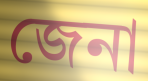
জেনা